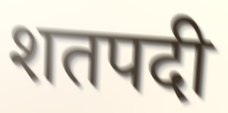
शतपदी